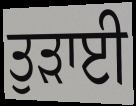
ਤੁੜਾਈ